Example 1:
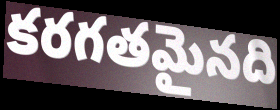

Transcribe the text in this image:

కరగతమైనది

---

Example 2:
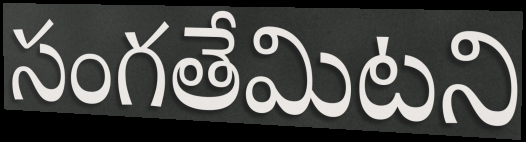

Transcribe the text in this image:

సంగతేమిటని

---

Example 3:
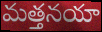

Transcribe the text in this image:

మత్తనయా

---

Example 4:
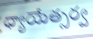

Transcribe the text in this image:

ధ్యాయేత్సర్వ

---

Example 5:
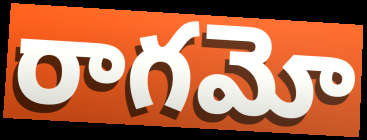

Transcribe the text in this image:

రాగమో